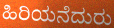
ಹಿರಿಯನೆದುರು